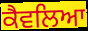
ਕੈਵਲਿਆ